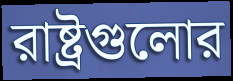
রাষ্ট্রগুলোর